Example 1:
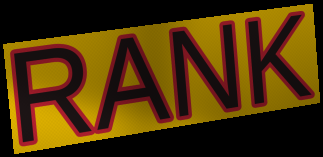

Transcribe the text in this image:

RANK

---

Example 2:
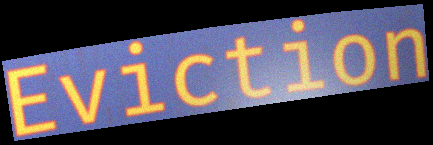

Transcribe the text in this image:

Eviction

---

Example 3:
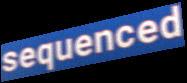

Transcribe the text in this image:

sequenced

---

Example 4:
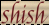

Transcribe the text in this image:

shish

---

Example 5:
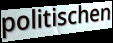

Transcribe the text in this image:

politischen